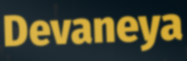
Devaneya